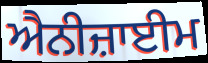
ਐਨੀਜ਼ਾਈਮ